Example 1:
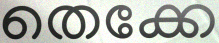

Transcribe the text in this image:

തെക്കേ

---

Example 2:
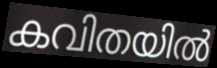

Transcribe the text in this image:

കവിതയിൽ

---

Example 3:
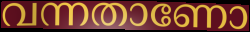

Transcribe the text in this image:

വന്നതാണോ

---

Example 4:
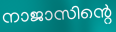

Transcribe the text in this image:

നാജാസിന്റെ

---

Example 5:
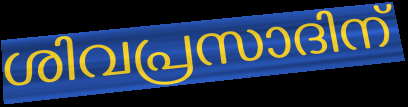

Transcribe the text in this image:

ശിവപ്രസാദിന്